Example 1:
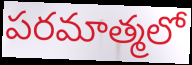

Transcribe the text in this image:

పరమాత్మలో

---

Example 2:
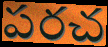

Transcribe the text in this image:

పరచ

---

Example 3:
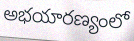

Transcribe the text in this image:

అభయారణ్యంలో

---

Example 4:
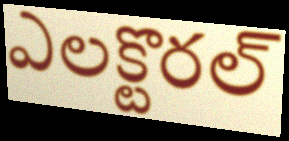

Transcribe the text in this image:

ఎలక్టొరల్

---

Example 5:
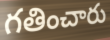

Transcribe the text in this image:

గతించారు